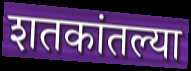
शतकांतल्या